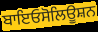
ਬਾਇਓਸੋਲਿਊਸ਼ਨ